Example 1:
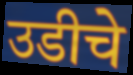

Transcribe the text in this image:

उडीचे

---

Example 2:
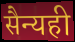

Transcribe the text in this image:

सैन्यही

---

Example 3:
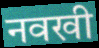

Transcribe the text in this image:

नवखी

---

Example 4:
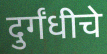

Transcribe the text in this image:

दुर्गंधीचे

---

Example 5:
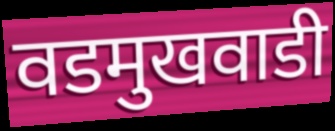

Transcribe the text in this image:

वडमुखवाडी